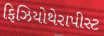
ફિઝિયોથેરાપીસ્ટ